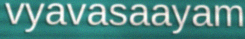
vyavasaayam